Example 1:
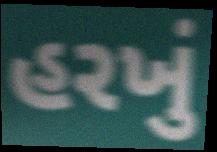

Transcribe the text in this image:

હરખું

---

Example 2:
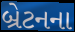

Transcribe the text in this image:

બ્રેટનના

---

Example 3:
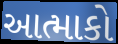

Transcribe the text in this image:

આત્માકો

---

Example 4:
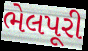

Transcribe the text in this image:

ભેલપૂરી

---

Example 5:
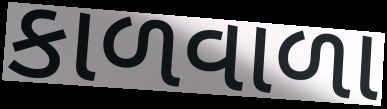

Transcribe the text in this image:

કાળવાળા